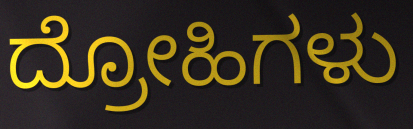
ದ್ರೋಹಿಗಳು